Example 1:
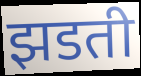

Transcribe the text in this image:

झडती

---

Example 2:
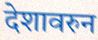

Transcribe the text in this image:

देशावरुन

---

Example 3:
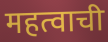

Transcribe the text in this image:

महत्वाची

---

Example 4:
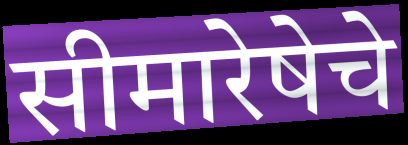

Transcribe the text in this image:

सीमारेषेचे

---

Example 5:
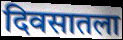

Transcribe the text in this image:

दिवसातला